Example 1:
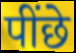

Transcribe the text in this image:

पींछे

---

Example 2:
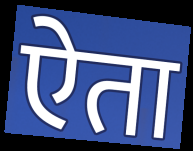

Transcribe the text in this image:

ऐता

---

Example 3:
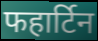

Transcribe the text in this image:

फहार्टिन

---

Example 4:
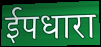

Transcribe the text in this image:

ईपधारा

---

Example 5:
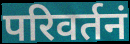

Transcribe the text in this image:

परिवर्तनं